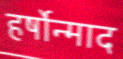
हर्षोन्माद